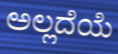
ಅಲ್ಲದೆಯೆ